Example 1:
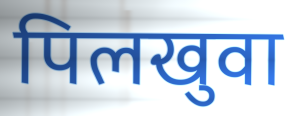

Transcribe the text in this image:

पिलखुवा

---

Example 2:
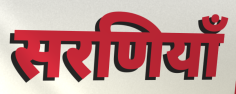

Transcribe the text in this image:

सरणियाँ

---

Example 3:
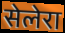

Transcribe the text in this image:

सेलेरा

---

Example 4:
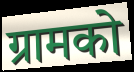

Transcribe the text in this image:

ग्रामको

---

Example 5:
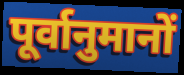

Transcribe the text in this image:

पूर्वानुमानों